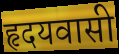
हृदयवासी